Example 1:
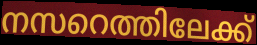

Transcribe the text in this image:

നസറെത്തിലേക്ക്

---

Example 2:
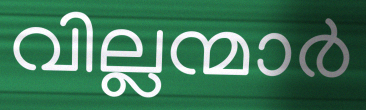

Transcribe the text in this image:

വില്ലന്മാർ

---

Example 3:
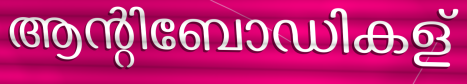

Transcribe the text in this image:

ആന്റിബോഡികള്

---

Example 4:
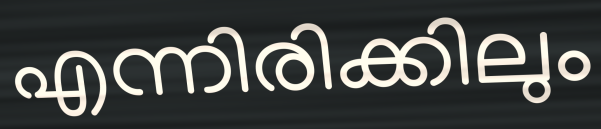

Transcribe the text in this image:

എന്നിരിക്കിലും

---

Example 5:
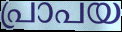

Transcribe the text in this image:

പ്രാപയ